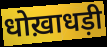
धोख़ाधड़ी